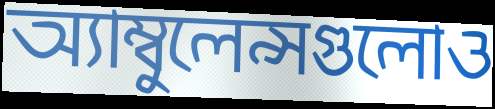
অ্যাম্বুলেন্সগুলোও